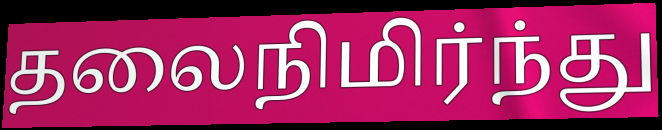
தலைநிமிர்ந்து